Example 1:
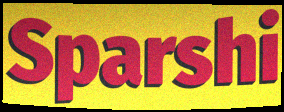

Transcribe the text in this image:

Sparshi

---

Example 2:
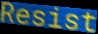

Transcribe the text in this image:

Resist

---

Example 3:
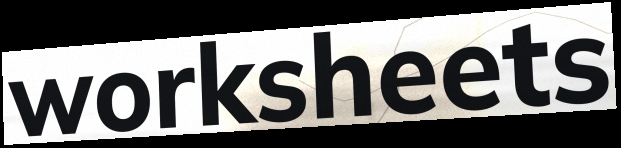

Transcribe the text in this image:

worksheets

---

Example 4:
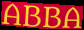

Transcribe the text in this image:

ABBA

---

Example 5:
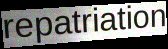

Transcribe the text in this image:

repatriation